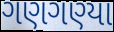
ગણગણ્યા